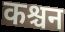
कश्चन